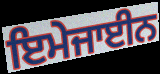
ਇਮੇਜਾਈਨ